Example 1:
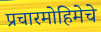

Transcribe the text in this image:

प्रचारमोहिमेचे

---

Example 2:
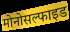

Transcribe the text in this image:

मोनोसल्फाइड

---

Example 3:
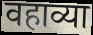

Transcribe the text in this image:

वहाव्या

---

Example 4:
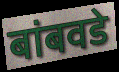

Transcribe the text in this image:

बांबवडे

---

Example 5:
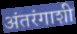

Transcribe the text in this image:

अंतरंगाशी